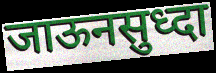
जाऊनसुध्दा